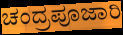
ಚಂದ್ರಪೂಜಾರಿ